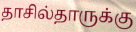
தாசில்தாருக்கு